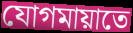
যোগমায়াতে